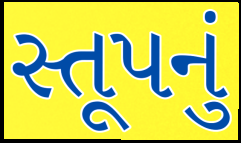
સ્તૂપનું